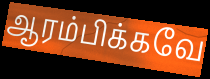
ஆரம்பிக்கவே